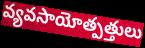
వ్యవసాయోత్పత్తులు